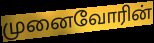
முனைவோரின்